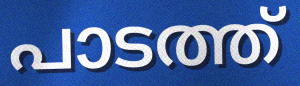
പാടത്ത്